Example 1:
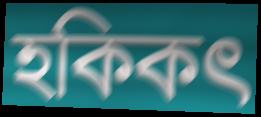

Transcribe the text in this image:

হকিকৎ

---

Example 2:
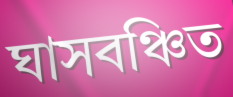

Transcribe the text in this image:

ঘাসবঞ্চিত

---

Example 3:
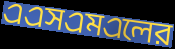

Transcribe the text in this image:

এএসএমএলের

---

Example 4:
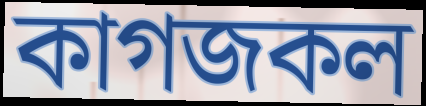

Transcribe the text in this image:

কাগজকল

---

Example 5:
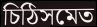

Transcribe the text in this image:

চিঠিসমেত